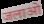
जलाओ